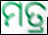
ମତ୍ର